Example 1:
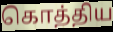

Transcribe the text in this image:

கொத்திய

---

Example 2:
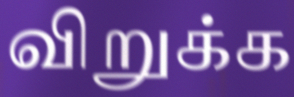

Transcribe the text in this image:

விறுக்க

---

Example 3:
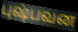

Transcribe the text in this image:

புஷ்பவன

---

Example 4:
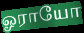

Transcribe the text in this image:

ஓராயோ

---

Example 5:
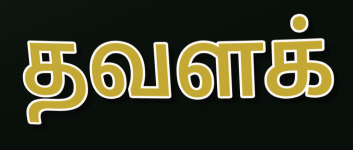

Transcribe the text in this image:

தவளக்